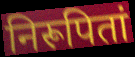
निरूपितां